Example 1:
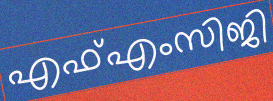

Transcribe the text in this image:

എഫ്എംസിജി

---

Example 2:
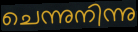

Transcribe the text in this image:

ചെന്നുനിന്നു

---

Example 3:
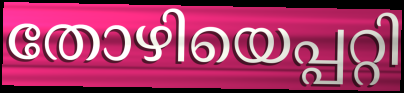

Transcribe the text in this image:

തോഴിയെപ്പറ്റി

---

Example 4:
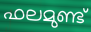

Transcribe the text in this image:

ഫലമുണ്ട്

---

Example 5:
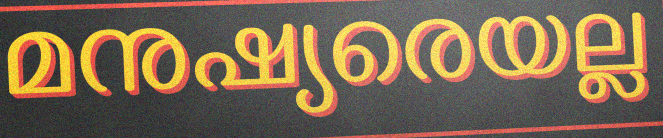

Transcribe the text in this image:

മനുഷ്യരെയല്ല